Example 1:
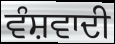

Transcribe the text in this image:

ਵੰਸ਼ਵਾਦੀ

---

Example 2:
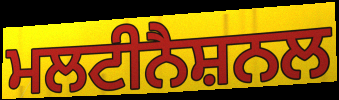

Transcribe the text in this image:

ਮਲਟੀਨੈਸ਼ਨਲ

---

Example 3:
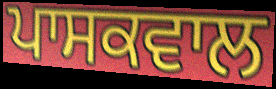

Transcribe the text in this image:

ਪਾਸਕਵਾਲ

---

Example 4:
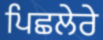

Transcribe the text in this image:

ਪਿਛਲੇਰੇ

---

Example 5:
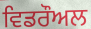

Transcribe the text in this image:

ਵਿਡਰੌਅਲ